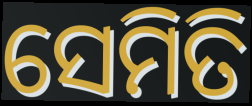
ସେମିତି